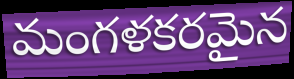
మంగళకరమైన